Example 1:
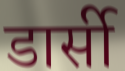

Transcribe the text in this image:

डार्सी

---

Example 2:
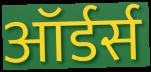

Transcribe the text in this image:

ऑर्डर्स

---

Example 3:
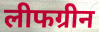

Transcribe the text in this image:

लीफग्रीन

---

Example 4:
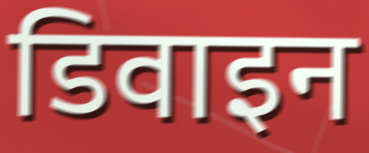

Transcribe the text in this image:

डिवाइन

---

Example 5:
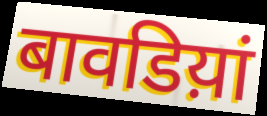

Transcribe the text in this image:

बावडिय़ां